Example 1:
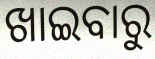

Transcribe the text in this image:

ଖାଇବାରୁ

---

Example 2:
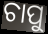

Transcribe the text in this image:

ଚାପୁ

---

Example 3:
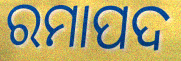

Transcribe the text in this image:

ରମାପଦ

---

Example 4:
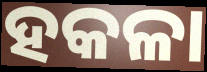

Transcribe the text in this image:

ହକଳା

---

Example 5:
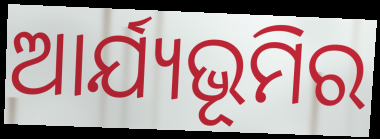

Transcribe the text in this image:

ଆର୍ଯ୍ୟଭୂମିର